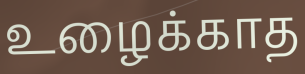
உழைக்காத